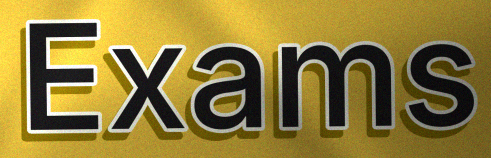
Exams